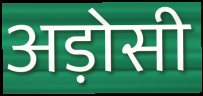
अड़ोसी